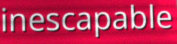
inescapable